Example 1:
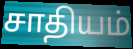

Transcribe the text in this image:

சாதியம்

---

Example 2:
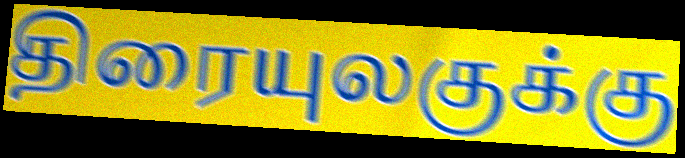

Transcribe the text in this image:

திரையுலகுக்கு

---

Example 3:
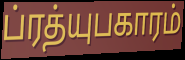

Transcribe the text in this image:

ப்ரத்யுபகாரம்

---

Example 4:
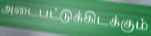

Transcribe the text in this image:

அடைபட்டுக்கிடக்கும்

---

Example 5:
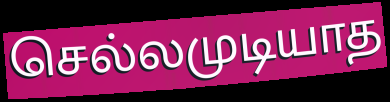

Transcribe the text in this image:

செல்லமுடியாத